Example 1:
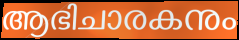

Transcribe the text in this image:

ആഭിചാരകനും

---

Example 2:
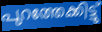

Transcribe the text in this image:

പുറത്തേക്കിട്ടു്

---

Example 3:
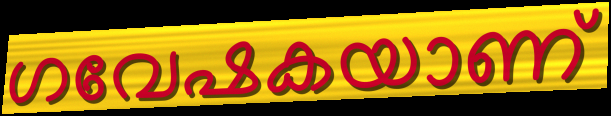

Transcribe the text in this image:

ഗവേഷകയാണ്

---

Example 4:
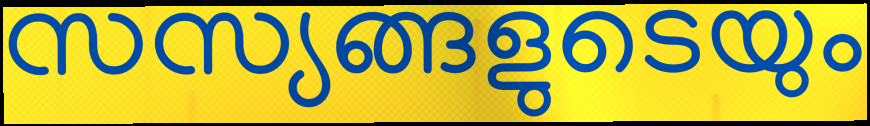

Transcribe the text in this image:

സസ്യങ്ങളുടെയും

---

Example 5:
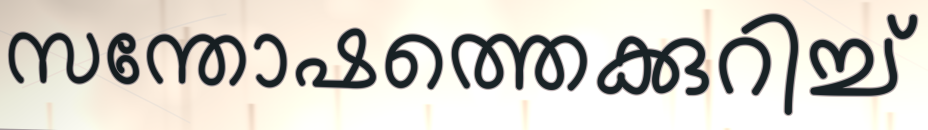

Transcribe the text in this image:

സന്തോഷത്തെക്കുറിച്ച്